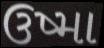
ઉષ્મા